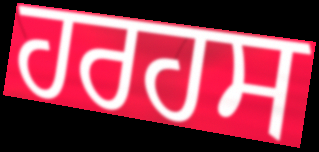
ਹਰਹਸ